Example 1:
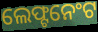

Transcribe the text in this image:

ଲେଫ୍ଟନେଂଟ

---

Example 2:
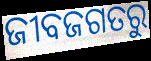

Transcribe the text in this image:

ଜୀବଜଗତରୁ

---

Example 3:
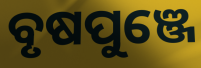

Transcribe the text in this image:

ବୃଷପୁଞ୍ଜେ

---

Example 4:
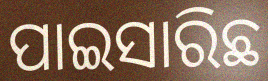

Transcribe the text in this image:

ପାଇସାରିଛ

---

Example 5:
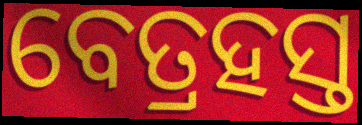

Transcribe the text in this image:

ବେତ୍ରହସ୍ତ